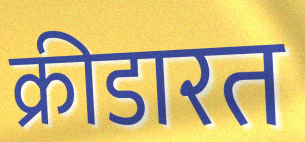
क्रीडारत